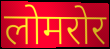
लोमरोर